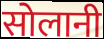
सोलानी